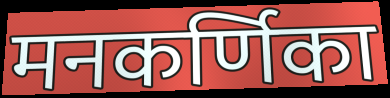
मनकर्णिका